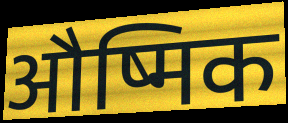
औष्मिक